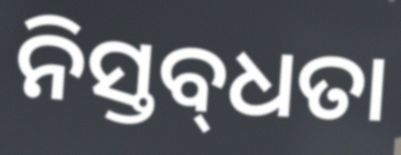
ନିସ୍ତବ୍‌ଧତା